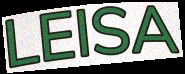
LEISA